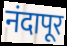
नंदापूर